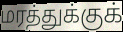
மரத்துக்குக்